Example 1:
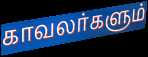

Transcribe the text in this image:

காவலர்களும்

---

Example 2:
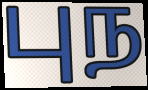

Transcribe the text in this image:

புந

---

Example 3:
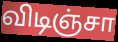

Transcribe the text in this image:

விடிஞ்சா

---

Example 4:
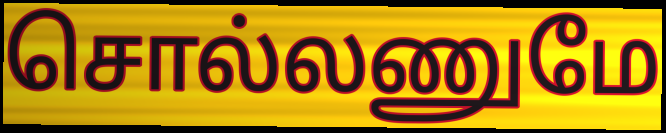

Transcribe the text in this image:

சொல்லணுமே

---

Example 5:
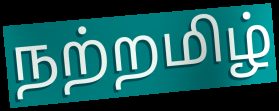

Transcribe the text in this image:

நற்றமிழ்